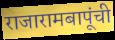
राजारामबापूंची